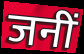
जनीं